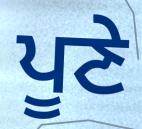
ਪੂਣੇ